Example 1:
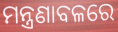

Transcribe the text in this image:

ମନ୍ତ୍ରଣାବଳରେ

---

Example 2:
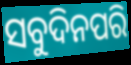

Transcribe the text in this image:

ସବୁଦିନପରି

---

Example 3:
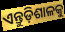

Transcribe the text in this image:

ଏନ୍ତୁଡ଼ିଶାଳକୁ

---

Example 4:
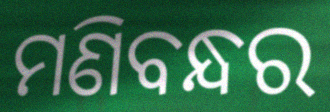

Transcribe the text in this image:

ମଣିବନ୍ଧର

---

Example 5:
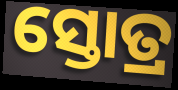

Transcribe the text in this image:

ସ୍ତୋତ୍ର